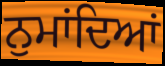
ਨੁਮਾਂਦਿਆਂ